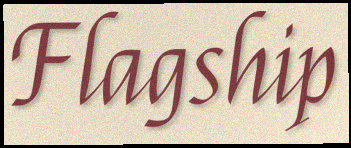
Flagship